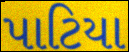
પાટિયા